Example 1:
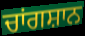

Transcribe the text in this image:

ਚਾਂਗਸ਼ਾਨ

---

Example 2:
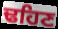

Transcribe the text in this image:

ਢਹਿਣ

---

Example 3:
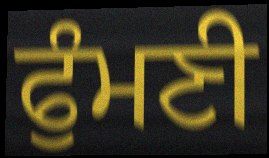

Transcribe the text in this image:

ਫੁੰਮਣੀ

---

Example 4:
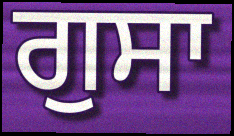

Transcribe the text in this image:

ਗੁਸਾ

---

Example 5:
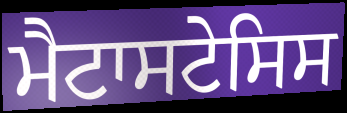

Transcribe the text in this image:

ਮੈਟਾਸਟੇਸਿਸ